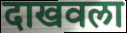
दाखवला